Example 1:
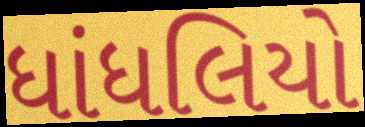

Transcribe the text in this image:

ધાંધલિયો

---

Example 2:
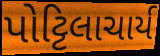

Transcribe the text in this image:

પોટ્ટિલાચાર્ય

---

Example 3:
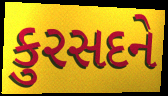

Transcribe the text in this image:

કુરસદને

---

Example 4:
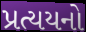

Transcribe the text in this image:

પ્રત્યયનો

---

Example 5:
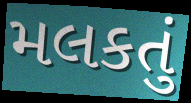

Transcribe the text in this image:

મલકતું